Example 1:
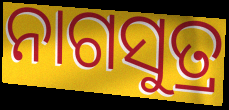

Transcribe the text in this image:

ନାଗସୁତ୍ର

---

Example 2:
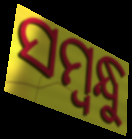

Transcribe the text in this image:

ସମ୍ବନ୍ଧୁ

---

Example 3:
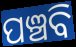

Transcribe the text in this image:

ପଞ୍ଚବି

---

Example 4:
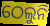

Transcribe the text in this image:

ଠେଲୁନି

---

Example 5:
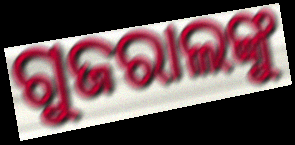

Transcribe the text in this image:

ଗୁଜରାଲଙ୍କୁ